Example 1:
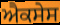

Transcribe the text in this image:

ਐਕਸੇਸ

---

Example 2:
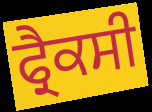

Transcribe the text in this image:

ਫ੍ਰੈਕਸੀ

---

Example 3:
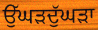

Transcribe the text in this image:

ਉੱਘੜਦੁੱਘੜਾ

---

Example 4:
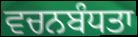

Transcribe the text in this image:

ਵਚਨਬੰਧਤਾ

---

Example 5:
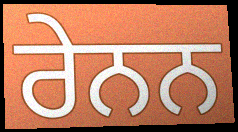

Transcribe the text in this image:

ਰੇਨਨ